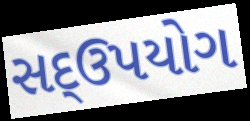
સદ્ઉપયોગ